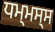
ਧਮ੍ਮਸ੍ਸ